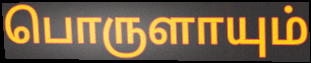
பொருளாயும்